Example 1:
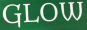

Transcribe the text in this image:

GLOW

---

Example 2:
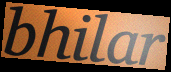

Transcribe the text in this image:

bhilar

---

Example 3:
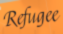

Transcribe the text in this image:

Refugee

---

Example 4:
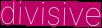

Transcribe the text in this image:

divisive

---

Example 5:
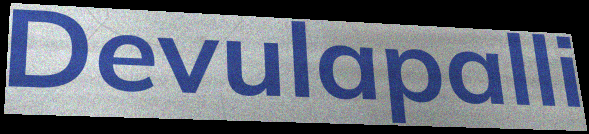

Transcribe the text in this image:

Devulapalli